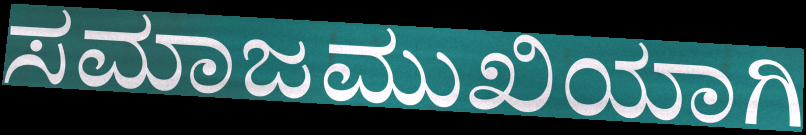
ಸಮಾಜಮುಖಿಯಾಗಿ